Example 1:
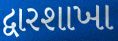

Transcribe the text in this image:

દ્વારશાખા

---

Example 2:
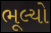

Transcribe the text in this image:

ભૂલ્‍યો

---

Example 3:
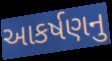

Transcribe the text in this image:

આકર્ષણનુ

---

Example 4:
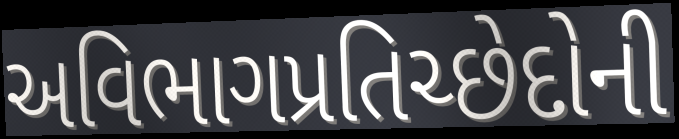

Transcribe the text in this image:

અવિભાગપ્રતિચ્છેદોની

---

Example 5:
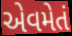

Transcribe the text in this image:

એવમેતં